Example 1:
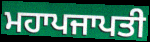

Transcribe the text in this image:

ਮਹਾਪਜਾਪਤੀ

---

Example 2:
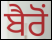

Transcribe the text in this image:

ਬੈਰੋਂ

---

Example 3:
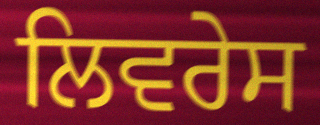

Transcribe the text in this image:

ਲਿਵਰੇਸ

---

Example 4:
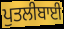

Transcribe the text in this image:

ਪੁਤਲੀਬਾਈ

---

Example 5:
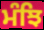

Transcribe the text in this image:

ਮੰਝਿ